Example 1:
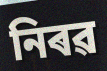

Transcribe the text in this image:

নিৰৱ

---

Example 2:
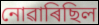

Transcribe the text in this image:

নোৱাৰিছিল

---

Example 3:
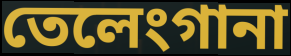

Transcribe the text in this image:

তেলেংগানা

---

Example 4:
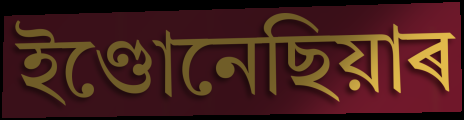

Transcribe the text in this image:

ইণ্ডোনেছিয়াৰ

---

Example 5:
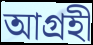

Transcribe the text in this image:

আগ্ৰহী